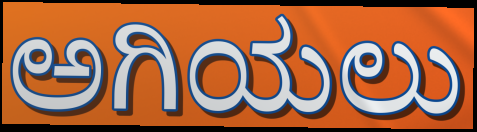
ಅಗಿಯಲು